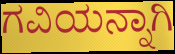
ಗವಿಯನ್ನಾಗಿ